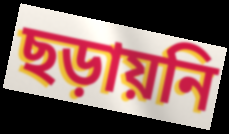
ছড়ায়নি